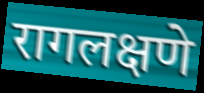
रागलक्षणे